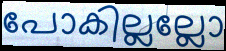
പോകില്ലല്ലോ